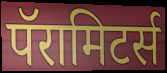
पॅरामिटर्स